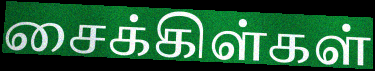
சைக்கிள்கள்